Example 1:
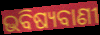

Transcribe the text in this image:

ଭବିଷ୍ୟବାଣୀ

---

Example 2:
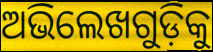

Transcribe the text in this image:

ଅଭିଲେଖଗୁଡ଼ିକୁ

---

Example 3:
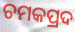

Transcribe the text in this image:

ଚମକପ୍ରଦ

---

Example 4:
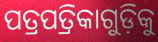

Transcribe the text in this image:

ପତ୍ରପତ୍ରିକାଗୁଡ଼ିକୁ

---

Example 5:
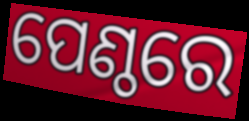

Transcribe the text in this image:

ପେଣ୍ଠରେ